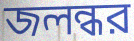
জলন্ধর